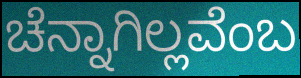
ಚೆನ್ನಾಗಿಲ್ಲವೆಂಬ